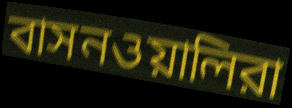
বাসনওয়ালিরা